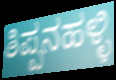
ತಿಪ್ಪನಹಳ್ಳಿ